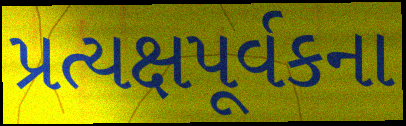
પ્રત્યક્ષપૂર્વકના